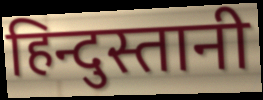
हिन्‍दुस्‍तानी